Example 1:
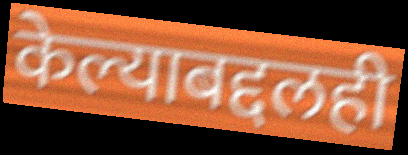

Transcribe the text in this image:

केल्याबद्दलही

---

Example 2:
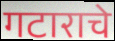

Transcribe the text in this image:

गटाराचे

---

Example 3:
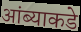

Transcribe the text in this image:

आंब्याकडे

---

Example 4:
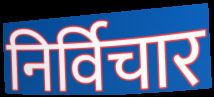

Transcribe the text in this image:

निर्विचार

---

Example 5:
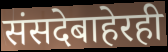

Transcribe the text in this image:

संसदेबाहेरही